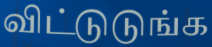
விட்டுடுங்க